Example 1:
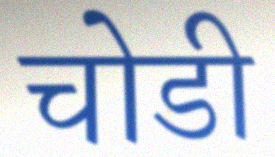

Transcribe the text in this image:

चोडी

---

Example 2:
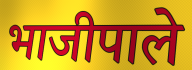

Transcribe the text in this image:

भाजीपाले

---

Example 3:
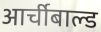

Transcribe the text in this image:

आर्चीबाल्ड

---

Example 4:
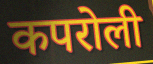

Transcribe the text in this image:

कपरोली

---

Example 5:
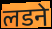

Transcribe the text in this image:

लडने